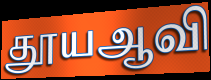
தூயஆவி